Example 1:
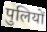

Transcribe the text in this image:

पुलियों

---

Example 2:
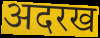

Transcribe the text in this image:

अदरख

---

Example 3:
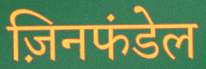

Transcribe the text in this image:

ज़िनफंडेल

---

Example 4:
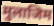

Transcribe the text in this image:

मुलाजिम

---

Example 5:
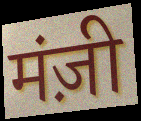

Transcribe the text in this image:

मंज़ी